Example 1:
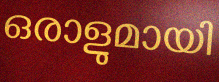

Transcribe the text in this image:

ഒരാളുമായി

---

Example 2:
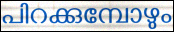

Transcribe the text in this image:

പിറക്കുമ്പോഴും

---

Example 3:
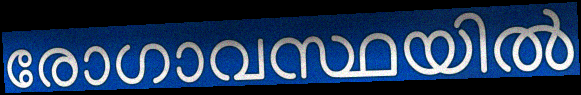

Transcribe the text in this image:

രോഗാവസ്ഥയിൽ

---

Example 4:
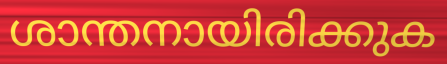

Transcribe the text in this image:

ശാന്തനായിരിക്കുക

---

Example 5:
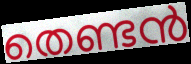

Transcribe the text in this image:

തെണ്ടൻ